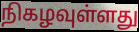
நிகழவுள்ளது